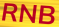
RNB